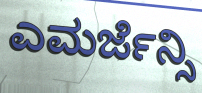
ಎಮರ್ಜೆನ್ಸಿ